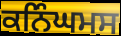
ਕਨਿੰਘਮਸ